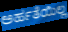
ಅರ್ಹತೆಯಿಲ್ಲ